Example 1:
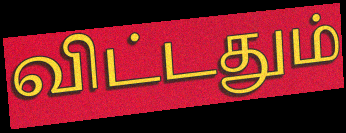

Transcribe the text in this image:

விட்டதும்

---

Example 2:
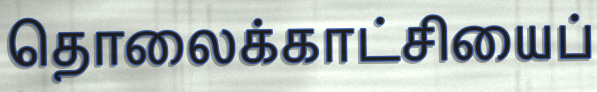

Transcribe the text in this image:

தொலைக்காட்சியைப்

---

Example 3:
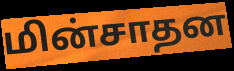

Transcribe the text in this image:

மின்சாதன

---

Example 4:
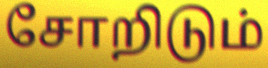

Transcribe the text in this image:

சோறிடும்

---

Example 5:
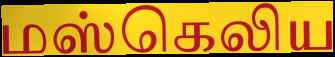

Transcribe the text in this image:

மஸ்கெலிய